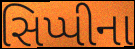
સિપ્પીના